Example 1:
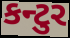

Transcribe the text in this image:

કન્ટુર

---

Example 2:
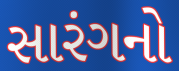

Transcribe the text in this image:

સારંગનો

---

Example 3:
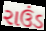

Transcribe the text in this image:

રાઉંડ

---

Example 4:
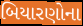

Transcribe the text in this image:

બિયારણોના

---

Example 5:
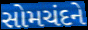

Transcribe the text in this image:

સોમચંદને